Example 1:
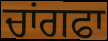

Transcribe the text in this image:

ਚਾਂਗਫਾ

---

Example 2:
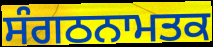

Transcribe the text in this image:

ਸੰਗਠਨਾਮਤਕ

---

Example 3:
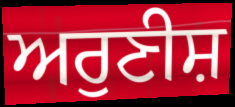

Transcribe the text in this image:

ਅਰੁਣੀਸ਼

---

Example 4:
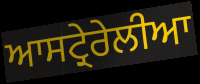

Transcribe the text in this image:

ਆਸਟ੍ਰੇਰੇਲੀਆ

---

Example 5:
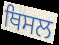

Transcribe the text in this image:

ਥਿਸਲ